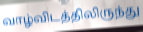
வாழ்விடத்திலிருந்து